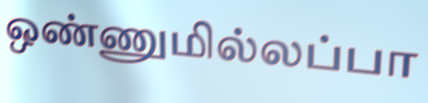
ஒண்ணுமில்லப்பா